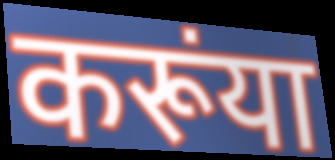
करूंया